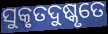
ସୁକୃତଦୁଷ୍କୃତେ